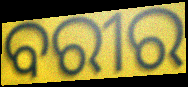
ବରୀର